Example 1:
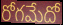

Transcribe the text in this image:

రోగమేదో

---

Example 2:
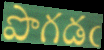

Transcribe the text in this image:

పొగడఁ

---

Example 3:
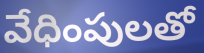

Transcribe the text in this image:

వేధింపులతో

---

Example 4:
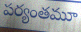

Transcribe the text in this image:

పర్యంతమూ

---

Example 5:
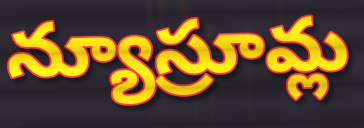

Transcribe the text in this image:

న్యూస్రూమ్ల